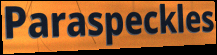
Paraspeckles